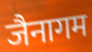
जैनागम